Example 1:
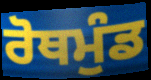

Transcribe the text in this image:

ਰੋਥਮੁੰਡ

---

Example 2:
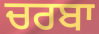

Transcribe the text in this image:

ਚਰਬਾ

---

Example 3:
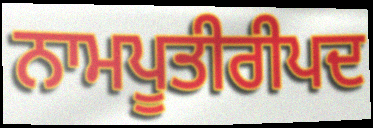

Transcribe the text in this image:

ਨਾਮਪੂਤੀਰੀਪਦ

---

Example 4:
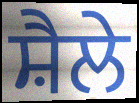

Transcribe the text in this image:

ਸ਼ੈਲੇ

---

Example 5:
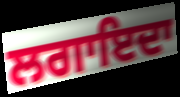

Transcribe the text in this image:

ਲਗਾਇਦਾ